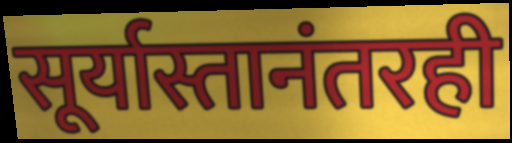
सूर्यास्तानंतरही